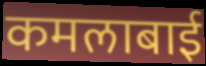
कमलाबाई